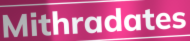
Mithradates